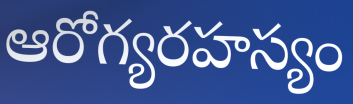
ఆరోగ్యరహస్యం